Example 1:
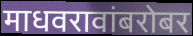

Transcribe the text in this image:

माधवरावांबरोबर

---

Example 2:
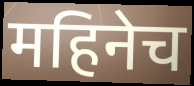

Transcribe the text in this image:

महिनेच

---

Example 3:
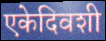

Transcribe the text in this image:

एकेदिवशी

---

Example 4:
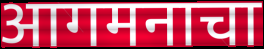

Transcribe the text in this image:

आगमनाचा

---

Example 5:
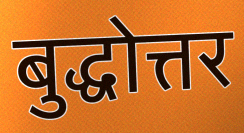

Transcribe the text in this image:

बुद्धोत्तर